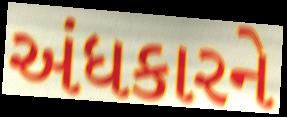
અંધકારને